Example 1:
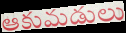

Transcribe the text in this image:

ఆకుమడులు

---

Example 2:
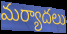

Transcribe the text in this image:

మర్యాదలు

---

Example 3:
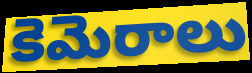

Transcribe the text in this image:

కెమెరాలు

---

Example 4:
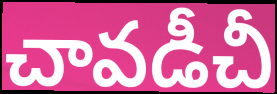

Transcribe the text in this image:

చావడీచీ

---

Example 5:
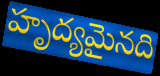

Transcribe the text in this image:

హృద్యమైనది